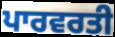
ਪਾਰਵਰਤੀ